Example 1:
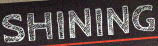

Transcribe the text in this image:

SHINING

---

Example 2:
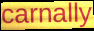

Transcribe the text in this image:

carnally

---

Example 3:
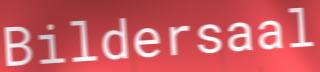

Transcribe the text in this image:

Bildersaal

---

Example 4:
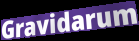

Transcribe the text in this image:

Gravidarum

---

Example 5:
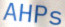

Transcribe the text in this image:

AHPs